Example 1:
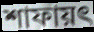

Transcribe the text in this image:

শাফায়ৎ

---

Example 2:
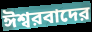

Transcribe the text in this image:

ঈশ্বরবাদের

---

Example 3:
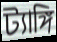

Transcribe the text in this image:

ট্যাঙ্গি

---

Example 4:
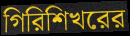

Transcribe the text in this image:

গিরিশিখরের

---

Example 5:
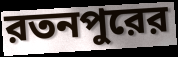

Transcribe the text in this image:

রতনপুরের